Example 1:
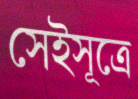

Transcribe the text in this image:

সেইসূত্রে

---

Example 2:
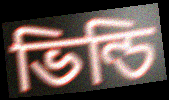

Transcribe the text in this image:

ভিন্ডি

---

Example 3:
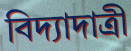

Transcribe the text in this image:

বিদ্যাদাত্রী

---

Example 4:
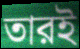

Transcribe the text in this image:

তারই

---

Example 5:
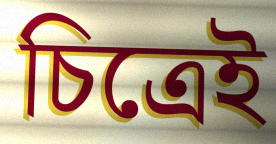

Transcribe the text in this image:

চিত্রেই